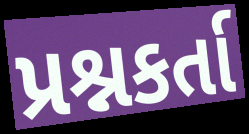
પ્રશ્નકર્તા